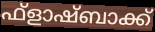
ഫ്ളാഷ്ബാക്ക്